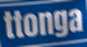
ttonga